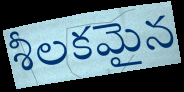
శీలకమైన